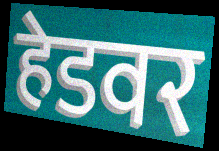
हेडवर